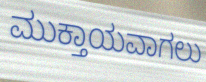
ಮುಕ್ತಾಯವಾಗಲು